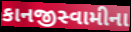
કાનજીસ્વામીના